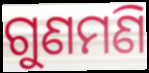
ଗୁଣମଣି